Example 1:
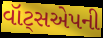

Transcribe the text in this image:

વૉટ્સએપની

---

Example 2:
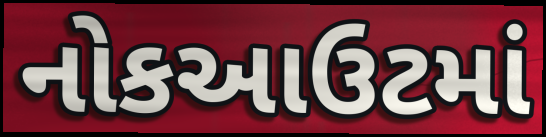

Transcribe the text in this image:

નોકઆઉટમાં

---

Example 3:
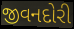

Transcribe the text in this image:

જીવનદોરી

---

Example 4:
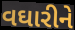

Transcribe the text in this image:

વઘારીને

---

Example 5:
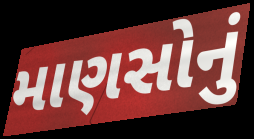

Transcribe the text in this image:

માણસોનું